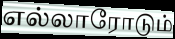
எல்லாரோடும்